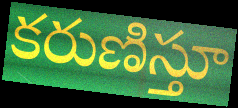
కరుణిస్తూ